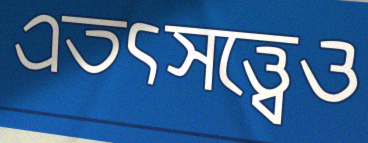
এতৎসত্ত্বেও